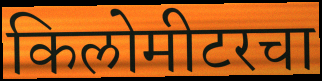
किलोमीटरचा